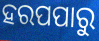
ହରପପାରୁ